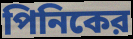
পিনিকের